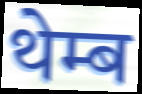
थेम्ब